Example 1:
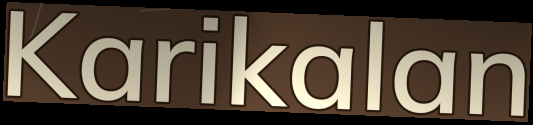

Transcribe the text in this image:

Karikalan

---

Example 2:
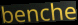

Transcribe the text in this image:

benche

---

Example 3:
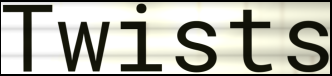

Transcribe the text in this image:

Twists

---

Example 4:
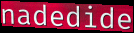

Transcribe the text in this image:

nadedide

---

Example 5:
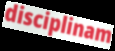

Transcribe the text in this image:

disciplinam